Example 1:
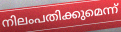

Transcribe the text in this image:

നിലംപതിക്കുമെന്ന്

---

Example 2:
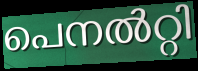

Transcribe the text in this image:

പെനൽറ്റി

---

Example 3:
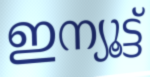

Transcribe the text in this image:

ഇന്യൂട്ട്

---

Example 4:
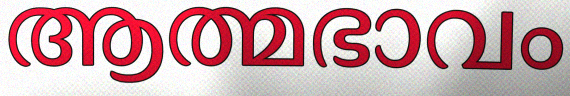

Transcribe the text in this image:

ആത്മഭാവം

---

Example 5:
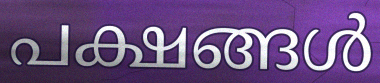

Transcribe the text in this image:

പക്ഷങ്ങൾ